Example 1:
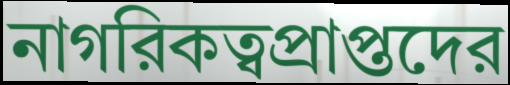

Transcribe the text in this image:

নাগরিকত্বপ্রাপ্তদের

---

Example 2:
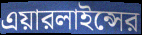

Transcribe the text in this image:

এয়ারলাইন্সের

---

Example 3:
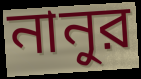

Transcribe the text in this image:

নানুর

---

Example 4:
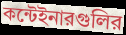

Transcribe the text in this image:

কন্টেইনারগুলির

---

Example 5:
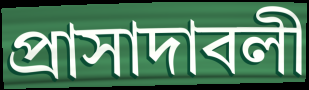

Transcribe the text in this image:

প্রাসাদাবলী